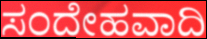
ಸಂದೇಹವಾದಿ